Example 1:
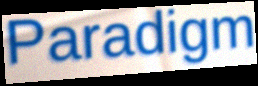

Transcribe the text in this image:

Paradigm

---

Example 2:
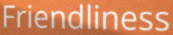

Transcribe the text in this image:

Friendliness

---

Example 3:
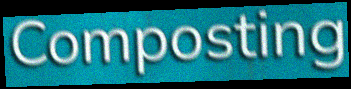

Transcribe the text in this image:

Composting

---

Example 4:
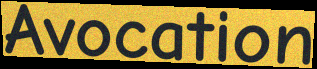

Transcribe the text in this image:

Avocation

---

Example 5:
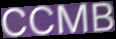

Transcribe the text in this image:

CCMB